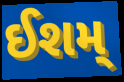
ઈશમ્